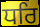
ਧਰਿ